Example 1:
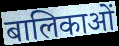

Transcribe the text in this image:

बालिकाओं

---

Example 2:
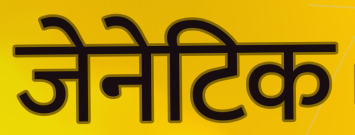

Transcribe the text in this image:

जेनेटिक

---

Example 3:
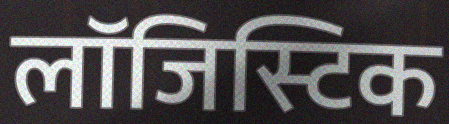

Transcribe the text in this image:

लॉजिस्टिक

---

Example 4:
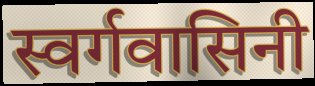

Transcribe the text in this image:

स्वर्गवासिनी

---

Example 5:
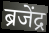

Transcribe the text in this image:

ब्रजेंद्र